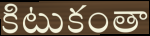
కిటుకంతా